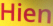
Hien